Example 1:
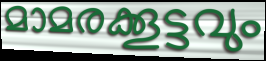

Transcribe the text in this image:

മാമരക്കൂട്ടവും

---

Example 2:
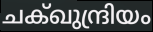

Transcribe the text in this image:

ചക്ഖുന്ദ്രിയം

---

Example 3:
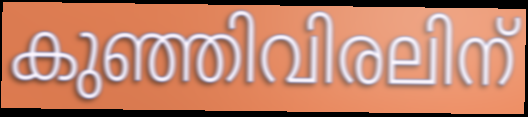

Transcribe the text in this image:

കുഞ്ഞിവിരലിന്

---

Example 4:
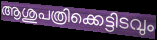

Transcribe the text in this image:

ആശുപത്രിക്കെട്ടിടവും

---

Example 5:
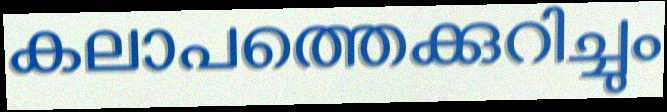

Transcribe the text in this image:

കലാപത്തെക്കുറിച്ചും